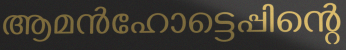
ആമൻഹോട്ടെപ്പിന്റെ